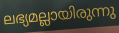
ലഭ്യമല്ലായിരുന്നു